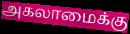
அகலாமைக்கு